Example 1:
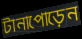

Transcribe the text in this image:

টানাপোড়েন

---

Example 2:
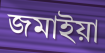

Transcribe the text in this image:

জমাইয়া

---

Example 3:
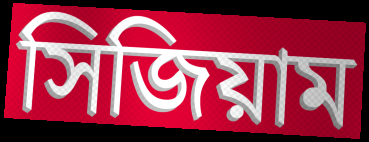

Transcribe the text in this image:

সিজিয়াম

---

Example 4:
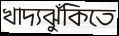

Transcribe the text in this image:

খাদ্যঝুঁকিতে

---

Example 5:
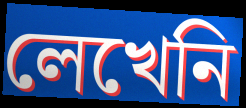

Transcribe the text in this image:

লেখেনি